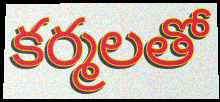
కర్మలతో